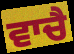
ਵਾਚੈ